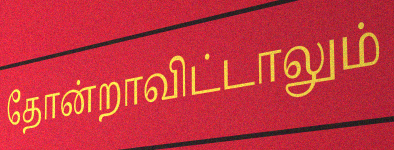
தோன்றாவிட்டாலும்